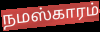
நமஸ்காரம்